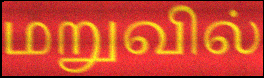
மறுவில்